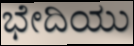
ಭೇದಿಯು